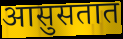
आसुसतात